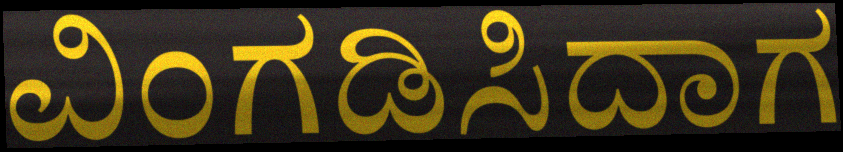
ವಿಂಗಡಿಸಿದಾಗ